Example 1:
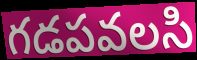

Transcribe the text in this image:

గడపవలసి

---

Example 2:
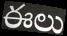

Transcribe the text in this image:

ఈలు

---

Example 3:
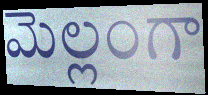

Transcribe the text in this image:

మెల్లంగా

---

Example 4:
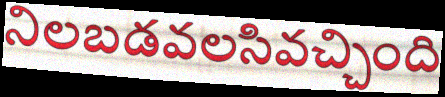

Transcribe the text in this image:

నిలబడవలసివచ్చింది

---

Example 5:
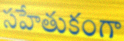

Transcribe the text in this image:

సహేతుకంగా